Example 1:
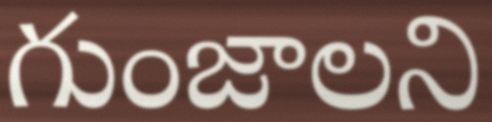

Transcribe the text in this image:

గుంజాలని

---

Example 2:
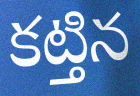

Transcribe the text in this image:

కట్తిన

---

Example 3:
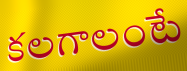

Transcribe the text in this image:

కలగాలంటే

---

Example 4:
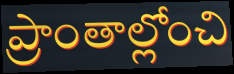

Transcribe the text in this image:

ప్రాంతాల్లోంచి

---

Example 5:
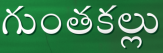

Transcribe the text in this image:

గుంతకల్లు